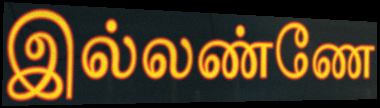
இல்லண்ணே